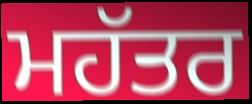
ਮਹੱਤਰ